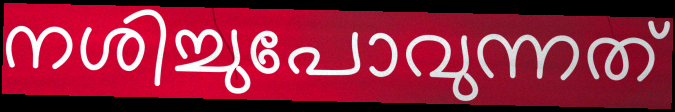
നശിച്ചുപോവുന്നത്